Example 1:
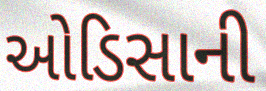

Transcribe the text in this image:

ઓડિસાની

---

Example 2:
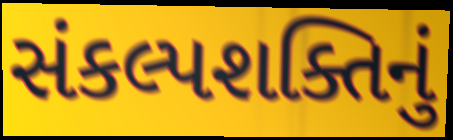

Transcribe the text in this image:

સંકલ્પશક્તિનું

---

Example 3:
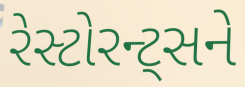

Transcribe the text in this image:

રેસ્ટોરન્ટ્સને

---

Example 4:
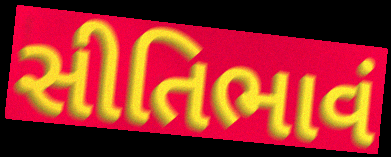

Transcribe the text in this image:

સીતિભાવં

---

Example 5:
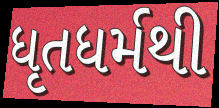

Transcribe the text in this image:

ધૃતધર્મથી